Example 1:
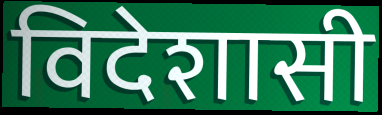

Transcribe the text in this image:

विदेशासी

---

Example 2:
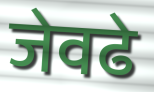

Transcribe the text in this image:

जेवढे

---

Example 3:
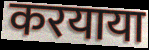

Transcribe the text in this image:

करयाया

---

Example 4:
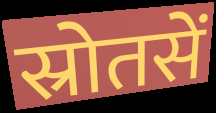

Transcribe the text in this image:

स्रोतसें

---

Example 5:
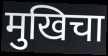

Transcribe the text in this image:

मुखिचा